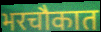
भरचौकात